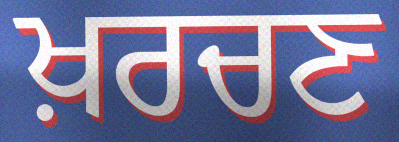
ਖ਼ਰਚਣ